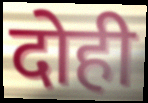
दोही